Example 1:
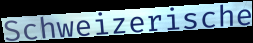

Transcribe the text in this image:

Schweizerische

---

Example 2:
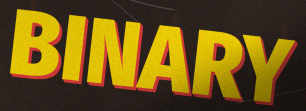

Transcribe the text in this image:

BINARY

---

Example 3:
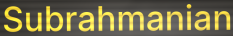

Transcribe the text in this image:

Subrahmanian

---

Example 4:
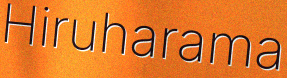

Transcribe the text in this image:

Hiruharama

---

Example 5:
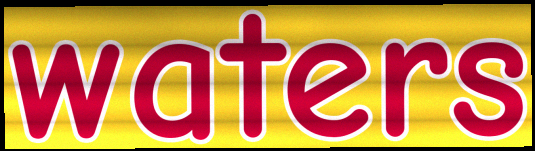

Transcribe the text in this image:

waters